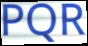
PQR